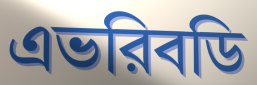
এভরিবডি